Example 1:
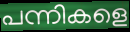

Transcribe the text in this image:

പന്നികളെ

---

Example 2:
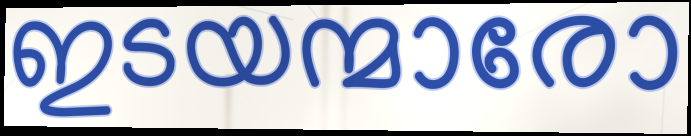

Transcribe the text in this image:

ഇടയന്മാരോ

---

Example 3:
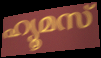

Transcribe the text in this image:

ഹ്യൂമസ്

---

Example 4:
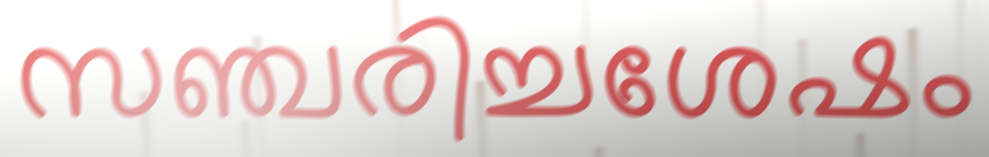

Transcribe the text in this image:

സഞ്ചരിച്ചശേഷം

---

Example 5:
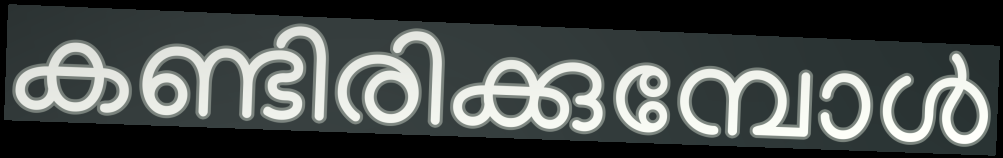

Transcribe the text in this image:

കണ്ടിരിക്കുമ്പോൾ